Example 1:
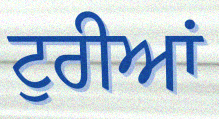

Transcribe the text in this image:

ਟੁਰੀਆਂ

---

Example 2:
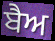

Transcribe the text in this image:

ਬੈਅ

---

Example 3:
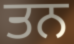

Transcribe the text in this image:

ਤਨ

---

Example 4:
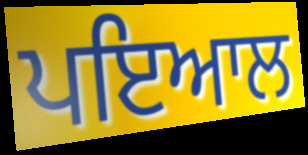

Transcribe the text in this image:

ਪਇਆਲ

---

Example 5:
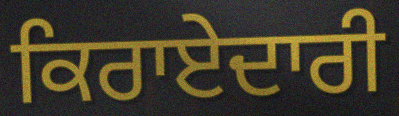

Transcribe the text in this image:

ਕਿਰਾਏਦਾਰੀ